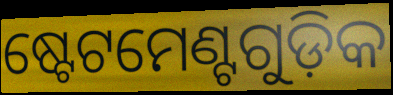
ଷ୍ଟେଟମେଣ୍ଟଗୁଡ଼ିକ